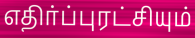
எதிர்ப்புரட்சியும்